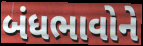
બંધભાવોને